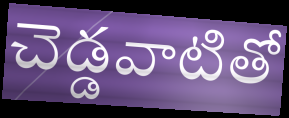
చెడ్డవాటితో